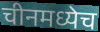
चीनमध्येच